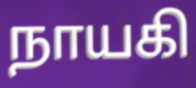
நாயகி